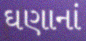
ઘણાનાં